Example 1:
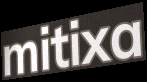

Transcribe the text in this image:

mitixa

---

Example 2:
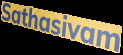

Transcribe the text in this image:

Sathasivam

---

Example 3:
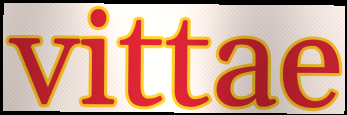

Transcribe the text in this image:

vittae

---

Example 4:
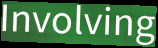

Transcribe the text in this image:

Involving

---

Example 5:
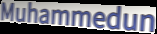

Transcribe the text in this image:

Muhammedun